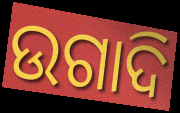
ଉଗାଦି